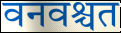
वनवश्चत